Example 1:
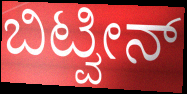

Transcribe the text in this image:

ಬಿಟ್ವೀನ್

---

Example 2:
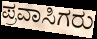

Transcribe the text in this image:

ಪ್ರವಾಸಿಗರು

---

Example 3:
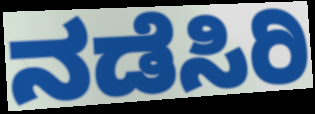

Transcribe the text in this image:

ನಡೆಸಿರಿ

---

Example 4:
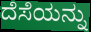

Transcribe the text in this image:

ದೆಸೆಯನ್ನು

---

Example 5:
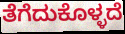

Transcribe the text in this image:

ತೆಗೆದುಕೊಳ್ಳದೆ